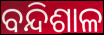
ବନ୍ଦିଶାଳ